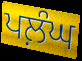
ਪਲ਼ੰਘ